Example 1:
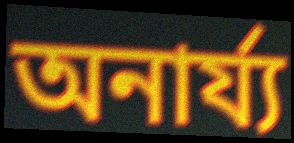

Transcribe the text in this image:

অনার্য্য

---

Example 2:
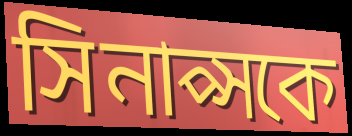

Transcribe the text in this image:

সিনাপ্সকে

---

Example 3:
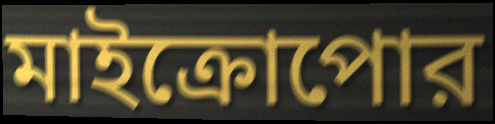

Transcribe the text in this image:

মাইক্রোপোর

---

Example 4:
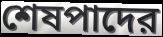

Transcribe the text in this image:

শেষপাদের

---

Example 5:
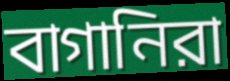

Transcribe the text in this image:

বাগানিরা